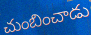
చుంబించాడు